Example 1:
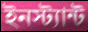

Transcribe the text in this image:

ইনস্ট্যান্ট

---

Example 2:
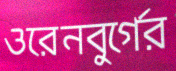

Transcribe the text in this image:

ওরেনবুর্গের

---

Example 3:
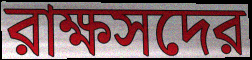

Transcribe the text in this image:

রাক্ষসদের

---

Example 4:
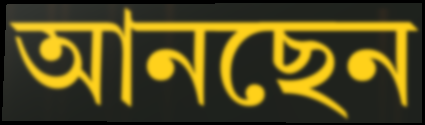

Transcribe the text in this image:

আনছেন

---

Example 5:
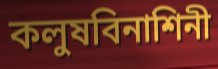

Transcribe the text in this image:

কলুষবিনাশিনী